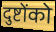
दुष्टोंको